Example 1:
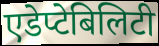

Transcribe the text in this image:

एडेप्टेबिलिटी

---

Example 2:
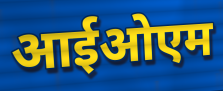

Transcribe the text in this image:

आईओएम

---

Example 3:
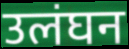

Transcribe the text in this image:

उलंघन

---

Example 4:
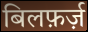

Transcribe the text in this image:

बिलफ़र्ज़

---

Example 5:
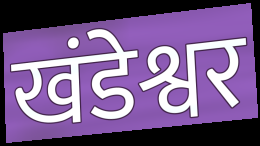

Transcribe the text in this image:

खंडेश्वर